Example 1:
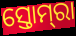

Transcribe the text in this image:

ସ୍ତୋମ୍‌ରା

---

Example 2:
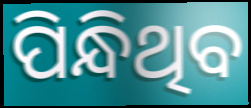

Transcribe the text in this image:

ପିନ୍ଧିଥିବ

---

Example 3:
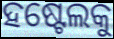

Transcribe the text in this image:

ହଷ୍ଟେଲକୁ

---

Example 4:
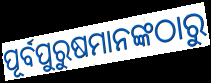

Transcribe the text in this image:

ପୂର୍ବପୁରୁଷମାନଙ୍କଠାରୁ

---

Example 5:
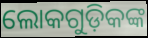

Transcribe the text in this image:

ଲୋକଗୁଡ଼ିକଙ୍କ